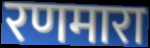
रणमारा